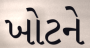
ખોટને